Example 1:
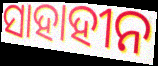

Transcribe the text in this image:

ସାହାହୀନ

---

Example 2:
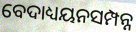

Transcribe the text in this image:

ବେଦାଧ୍ୟୟନସମ୍ପନ୍ନ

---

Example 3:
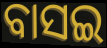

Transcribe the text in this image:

ବାସଇ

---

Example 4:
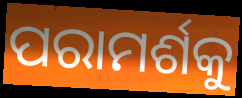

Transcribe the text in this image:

ପରାମର୍ଶକୁ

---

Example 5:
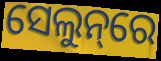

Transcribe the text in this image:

ସେଲୁନ୍‌ରେ